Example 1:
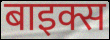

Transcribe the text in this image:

बाइक्स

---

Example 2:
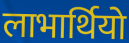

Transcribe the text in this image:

लाभार्थियो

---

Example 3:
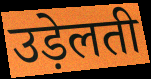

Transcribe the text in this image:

उड़ेलती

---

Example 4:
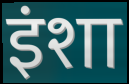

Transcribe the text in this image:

इंशा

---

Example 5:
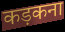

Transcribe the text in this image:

कड़कना